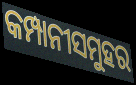
କମ୍ପାନୀସମୁହର